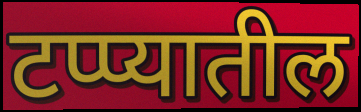
टप्प्यातील